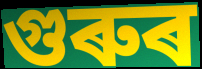
গুৰুৰ